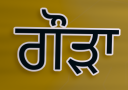
ਗੌੜਾ